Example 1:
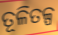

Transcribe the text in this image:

ତୂଳିତଳ୍ପ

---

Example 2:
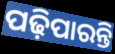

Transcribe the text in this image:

ପଢ଼ିପାରନ୍ତି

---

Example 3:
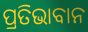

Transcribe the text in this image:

ପ୍ରତିଭାବାନ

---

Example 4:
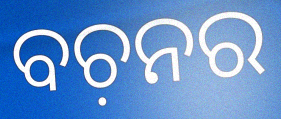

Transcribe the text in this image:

ବଚ଼ନର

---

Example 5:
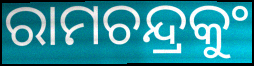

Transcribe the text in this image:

ରାମଚନ୍ଦ୍ରକୁଂ